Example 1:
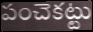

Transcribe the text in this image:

పంచెకట్టు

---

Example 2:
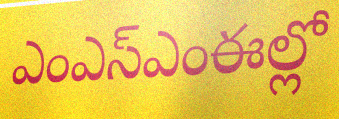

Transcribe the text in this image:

ఎంఎస్ఎంఈల్లో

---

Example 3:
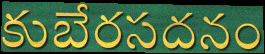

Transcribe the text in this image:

కుబేరసదనం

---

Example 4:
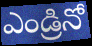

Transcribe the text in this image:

ఎండ్రినో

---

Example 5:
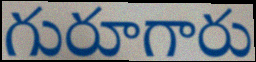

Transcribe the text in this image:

గురూగారు